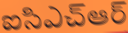
ఐసిఎచ్ఆర్